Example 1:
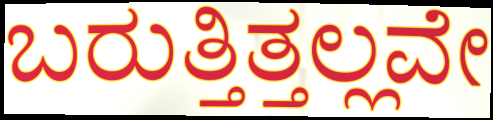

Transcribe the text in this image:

ಬರುತ್ತಿತ್ತಲ್ಲವೇ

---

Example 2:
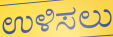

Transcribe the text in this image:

ಉಳಿಸಲು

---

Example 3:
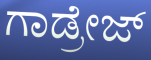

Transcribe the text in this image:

ಗಾಡ್ರೇಜ್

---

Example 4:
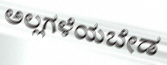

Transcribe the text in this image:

ಅಲ್ಲಗಳೆಯಬೇಡ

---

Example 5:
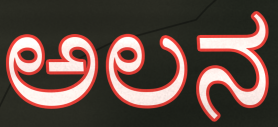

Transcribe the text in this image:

ಅಲನ